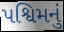
પશ્વિમનું